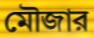
মৌজার